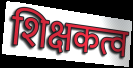
शिक्षकत्व